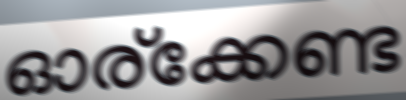
ഓര്ക്കേണ്ട